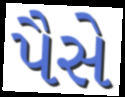
પૈસે